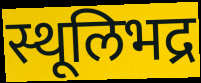
स्थूलिभद्र